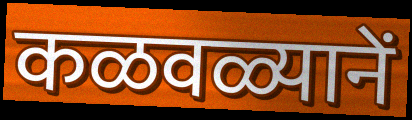
कळवळ्यानें